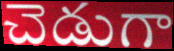
చెడుగా